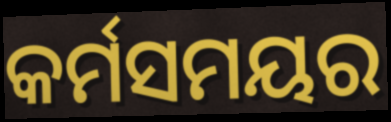
କର୍ମସମୟର